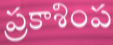
ప్రకాశింప